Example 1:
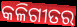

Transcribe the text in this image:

କଳିଗୀତର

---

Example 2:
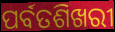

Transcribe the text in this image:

ପର୍ବତଶିଖରୀ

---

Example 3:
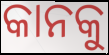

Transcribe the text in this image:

କାନକୁ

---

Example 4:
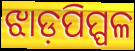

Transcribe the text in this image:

ଝାଡ଼ପିପ୍ପଳ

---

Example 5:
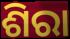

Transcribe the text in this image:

ଶିରା